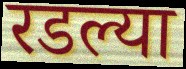
रडल्या